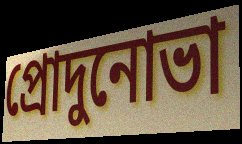
প্রোদুনোভা